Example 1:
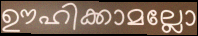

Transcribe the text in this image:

ഊഹിക്കാമല്ലോ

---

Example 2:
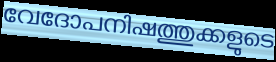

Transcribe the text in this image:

വേദോപനിഷത്തുക്കളുടെ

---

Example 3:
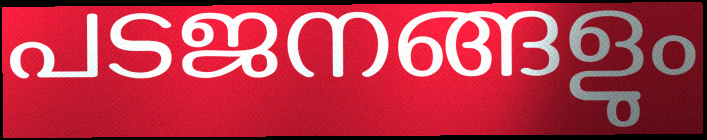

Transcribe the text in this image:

പടജനങ്ങളും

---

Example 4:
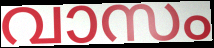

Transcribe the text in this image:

വാസം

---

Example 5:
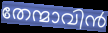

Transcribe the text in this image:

തേന്മാവിൻ